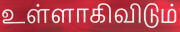
உள்ளாகிவிடும்